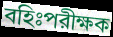
বহিঃপরীক্ষক